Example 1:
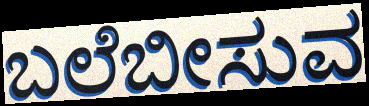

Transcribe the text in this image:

ಬಲೆಬೀಸುವ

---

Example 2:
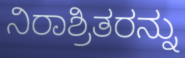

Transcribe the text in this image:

ನಿರಾಶ್ರಿತರನ್ನು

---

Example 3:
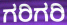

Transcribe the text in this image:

ಗರಿಗರಿ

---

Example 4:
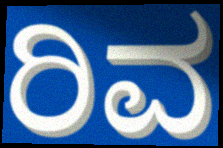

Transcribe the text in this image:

ರಿವ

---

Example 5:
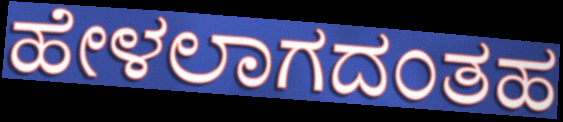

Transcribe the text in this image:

ಹೇಳಲಾಗದಂತಹ